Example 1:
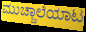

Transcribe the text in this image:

ಮುಚ್ಚಾಲೆಯಾಟ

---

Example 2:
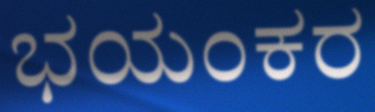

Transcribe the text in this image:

ಭಯಂಕರ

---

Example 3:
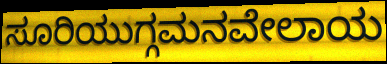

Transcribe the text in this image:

ಸೂರಿಯುಗ್ಗಮನವೇಲಾಯ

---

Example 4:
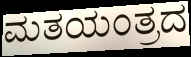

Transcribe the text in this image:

ಮತಯಂತ್ರದ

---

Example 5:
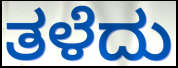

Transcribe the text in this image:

ತಳೆದು